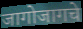
जागोजागचे